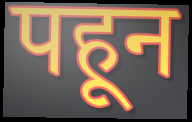
पहून